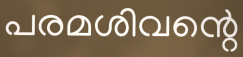
പരമശിവന്റെ